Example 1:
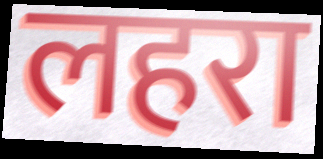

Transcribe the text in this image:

लहरा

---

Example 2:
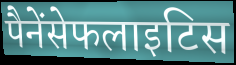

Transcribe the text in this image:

पैनेंसेफलाइटिस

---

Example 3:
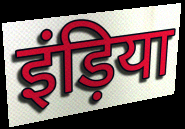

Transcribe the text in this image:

इंड़िया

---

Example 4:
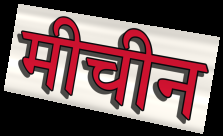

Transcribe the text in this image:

मीचीन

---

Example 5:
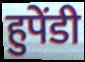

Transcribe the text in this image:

हुपेंडी